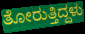
ತೋರುತ್ತಿದ್ದಳು